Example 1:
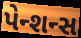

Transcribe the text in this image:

પેન્શન્સ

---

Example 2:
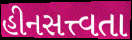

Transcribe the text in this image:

હીનસત્ત્વતા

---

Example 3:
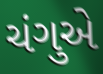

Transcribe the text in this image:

ચંગુએ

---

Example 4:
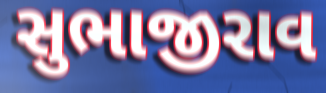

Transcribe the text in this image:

સુભાજીરાવ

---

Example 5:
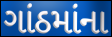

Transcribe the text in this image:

ગાંઠમાંના